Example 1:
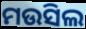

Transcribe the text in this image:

ମଉସିଲ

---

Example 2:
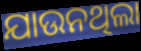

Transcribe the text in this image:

ଯାଉନଥିଲା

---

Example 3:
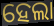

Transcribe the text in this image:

ହେଲା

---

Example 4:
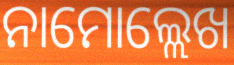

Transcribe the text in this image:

ନାମୋଲ୍ଲେଖ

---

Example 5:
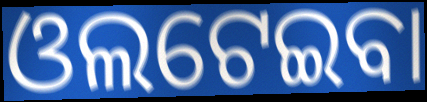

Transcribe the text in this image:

ଓଲଟେଇବା